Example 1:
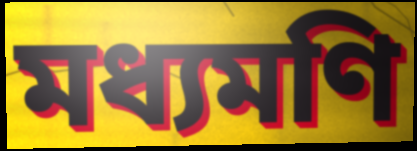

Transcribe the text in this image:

মধ্যমণি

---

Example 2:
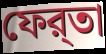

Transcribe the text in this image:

ফের্‌তা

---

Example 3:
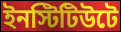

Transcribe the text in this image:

ইনস্টিটিউটে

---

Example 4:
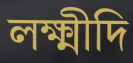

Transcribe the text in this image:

লক্ষ্মীদি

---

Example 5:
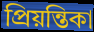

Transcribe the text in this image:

প্রিয়ন্তিকা